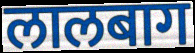
लालबाग